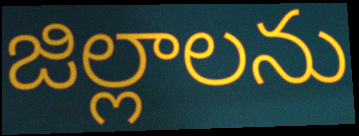
జిల్లాలను